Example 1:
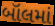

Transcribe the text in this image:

બૉલમાં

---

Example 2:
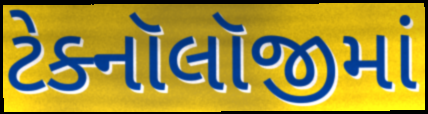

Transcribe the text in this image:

ટેક્નૉલૉજીમાં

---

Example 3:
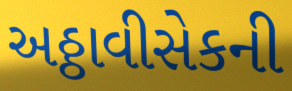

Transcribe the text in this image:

અઠ્ઠાવીસેકની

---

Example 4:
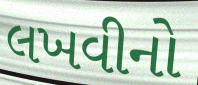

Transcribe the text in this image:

લખવીનો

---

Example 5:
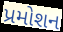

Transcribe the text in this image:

પ્રમોશન